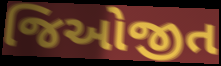
જિઓજીત